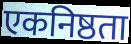
एकनिष्ठता